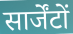
सार्जेंटों